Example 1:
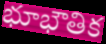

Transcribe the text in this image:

భూభౌతిక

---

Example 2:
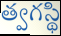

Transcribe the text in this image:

త్వగస్థి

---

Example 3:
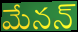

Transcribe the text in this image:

మేనన్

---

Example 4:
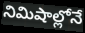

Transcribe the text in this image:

నిమిషాల్లోనే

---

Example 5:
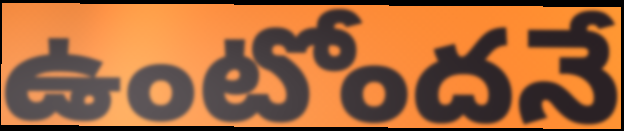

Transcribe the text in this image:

ఉంటోందనే